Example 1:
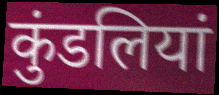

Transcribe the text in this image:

कुंडलियां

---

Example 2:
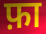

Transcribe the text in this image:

फ़ा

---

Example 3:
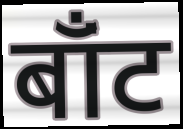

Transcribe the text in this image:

बांँट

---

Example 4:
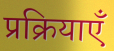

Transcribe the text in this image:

प्रक्रियाएँ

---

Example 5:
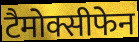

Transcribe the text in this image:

टैमोक्सीफेन